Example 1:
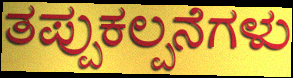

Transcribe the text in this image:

ತಪ್ಪುಕಲ್ಪನೆಗಳು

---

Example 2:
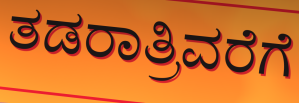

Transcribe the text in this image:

ತಡರಾತ್ರಿವರೆಗೆ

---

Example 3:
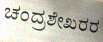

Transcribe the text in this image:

ಚಂದ್ರಶೇಖರರ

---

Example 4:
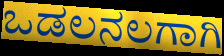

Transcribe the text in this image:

ಒಡಲನಲಗಾಗಿ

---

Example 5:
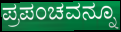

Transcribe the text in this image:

ಪ್ರಪಂಚವನ್ನೂ